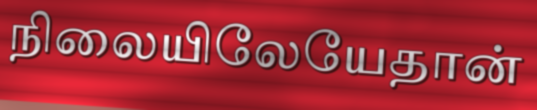
நிலையிலேயேதான்